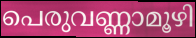
പെരുവണ്ണാമൂഴി